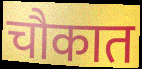
चौकात